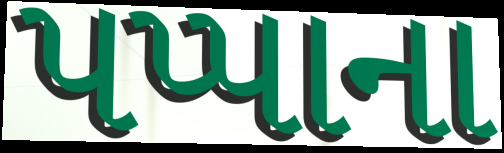
પપ્પાના